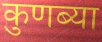
कुणब्या